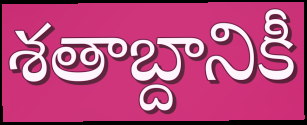
శతాబ్దానికీ